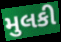
મુલકી